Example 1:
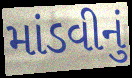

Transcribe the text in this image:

માંડવીનું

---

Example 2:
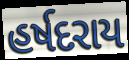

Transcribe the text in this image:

હર્ષદરાય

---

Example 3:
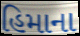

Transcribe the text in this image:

હિમાના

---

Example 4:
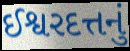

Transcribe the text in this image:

ઈશ્વરદત્તનું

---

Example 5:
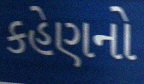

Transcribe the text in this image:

કહેણનો